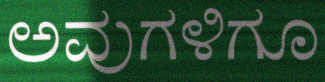
ಅವುಗಳಿಗೂ